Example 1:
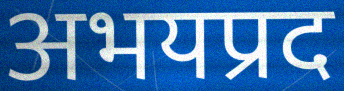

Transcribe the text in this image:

अभयप्रद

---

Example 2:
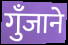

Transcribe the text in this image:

गुँजाने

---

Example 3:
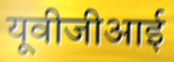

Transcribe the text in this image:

यूवीजीआई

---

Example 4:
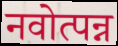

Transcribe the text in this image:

नवोत्पन्न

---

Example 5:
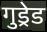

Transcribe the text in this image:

गुड्रेड